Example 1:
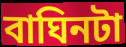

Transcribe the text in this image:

বাঘিনটা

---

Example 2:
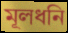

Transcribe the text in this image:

মূলধনি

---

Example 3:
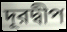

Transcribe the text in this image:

দূরদ্বীপ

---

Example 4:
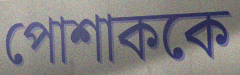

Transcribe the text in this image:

পোশাককে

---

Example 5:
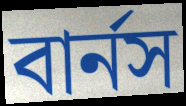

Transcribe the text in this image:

বার্নস